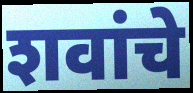
शवांचे